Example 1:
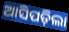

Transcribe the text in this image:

ଆସିପଡ଼ିଲା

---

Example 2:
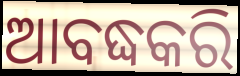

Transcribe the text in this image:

ଆବଦ୍ଧକରି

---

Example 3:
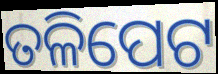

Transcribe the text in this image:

ତଳିପେଟ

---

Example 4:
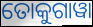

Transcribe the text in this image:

ତୋକୁଗାୱା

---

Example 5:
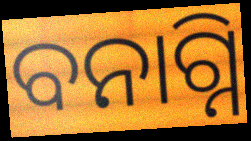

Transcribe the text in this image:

ବନାଗ୍ନି